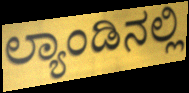
ಲ್ಯಾಂಡಿನಲ್ಲಿ